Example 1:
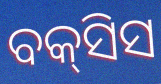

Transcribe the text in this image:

ବକ୍‍ସିସ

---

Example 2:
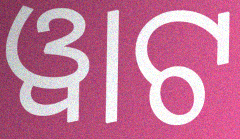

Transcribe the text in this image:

ୱାଟ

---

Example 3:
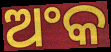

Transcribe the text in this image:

ଅଂକ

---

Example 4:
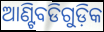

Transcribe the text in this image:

ଆଣ୍ଟିବଡିଗୁଡ଼ିକ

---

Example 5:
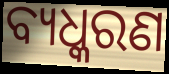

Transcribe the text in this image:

ବ୍ୟଧ୍କରଣ